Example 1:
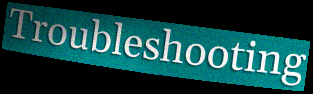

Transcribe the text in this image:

Troubleshooting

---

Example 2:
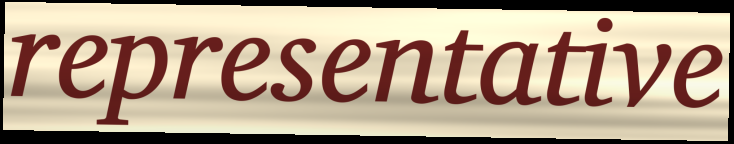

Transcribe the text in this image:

representative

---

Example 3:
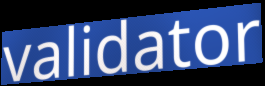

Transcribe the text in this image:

validator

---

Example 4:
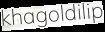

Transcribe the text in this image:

khagoldilip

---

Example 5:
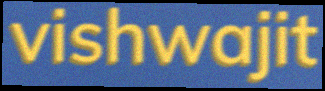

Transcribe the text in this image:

vishwajit